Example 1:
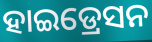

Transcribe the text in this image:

ହାଇଡ୍ରେସନ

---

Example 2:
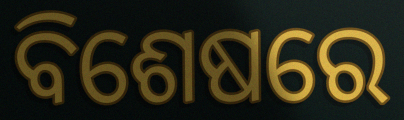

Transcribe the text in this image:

ବିଶେଷରେ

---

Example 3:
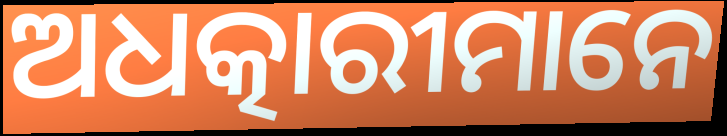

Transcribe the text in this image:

ଅଧତ୍କାରୀମାନେ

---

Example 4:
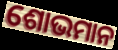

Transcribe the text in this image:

ଶୋଭମାନ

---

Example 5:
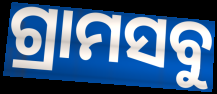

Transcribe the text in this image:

ଗ୍ରାମସବୁ